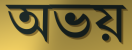
অভয়